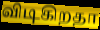
விடிகிறதா